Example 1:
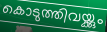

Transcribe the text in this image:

കൊടുത്തിവയ്ക്കും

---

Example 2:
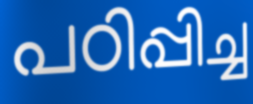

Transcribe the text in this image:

പഠിപ്പിച്ച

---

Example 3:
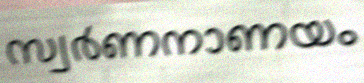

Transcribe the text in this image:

സ്വർണനാണയം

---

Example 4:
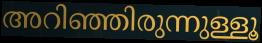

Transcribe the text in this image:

അറിഞ്ഞിരുന്നുള്ളൂ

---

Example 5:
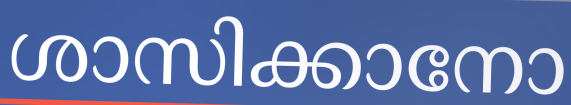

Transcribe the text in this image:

ശാസിക്കാനോ